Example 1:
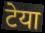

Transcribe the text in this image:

टेया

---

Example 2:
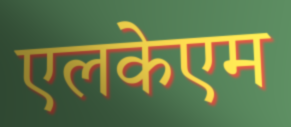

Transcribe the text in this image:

एलकेएम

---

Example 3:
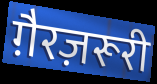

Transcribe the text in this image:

ग़ैरज़रूरी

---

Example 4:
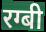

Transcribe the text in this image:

रग्बी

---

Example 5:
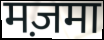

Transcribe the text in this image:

मज़मा